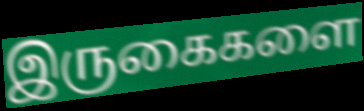
இருகைகளை